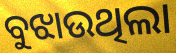
ବୁଝାଉଥିଲା